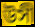
উসী